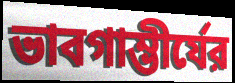
ভাবগাম্ভীর্যের